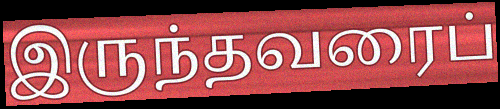
இருந்தவரைப்